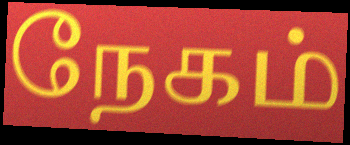
நேகம்